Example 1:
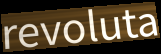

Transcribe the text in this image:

revoluta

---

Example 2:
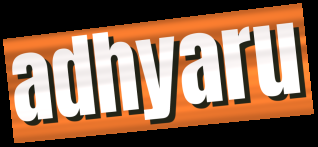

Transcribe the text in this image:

adhyaru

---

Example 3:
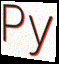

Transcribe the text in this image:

Py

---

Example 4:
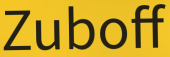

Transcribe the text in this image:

Zuboff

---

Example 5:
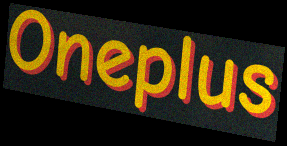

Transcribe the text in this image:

Oneplus